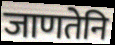
जाणतेनि